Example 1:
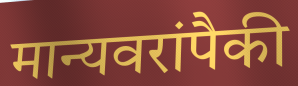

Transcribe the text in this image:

मान्यवरांपैकी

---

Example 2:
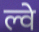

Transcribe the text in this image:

ल्वे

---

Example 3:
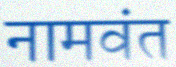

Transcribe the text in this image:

नामवंत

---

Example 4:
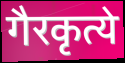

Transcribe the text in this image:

गैरकृत्ये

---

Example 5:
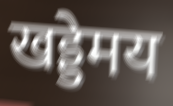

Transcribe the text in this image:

खड्डेमय